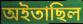
অইতাছিল